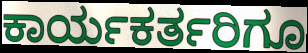
ಕಾರ್ಯಕರ್ತರಿಗೂ